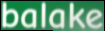
balake